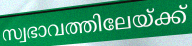
സ്വഭാവത്തിലേയ്ക്ക്